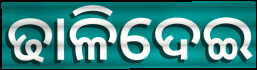
ଢାଳିଦେଇ